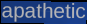
apathetic